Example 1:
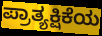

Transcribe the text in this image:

ಪ್ರಾತ್ಯಕ್ಷಿಕೆಯ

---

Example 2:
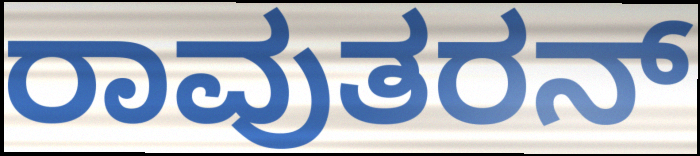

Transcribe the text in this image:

ರಾವುತರನ್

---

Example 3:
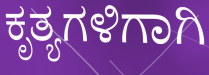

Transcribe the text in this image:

ಕೃತ್ಯಗಳಿಗಾಗಿ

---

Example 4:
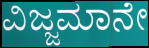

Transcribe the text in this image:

ವಿಜ್ಜಮಾನೇ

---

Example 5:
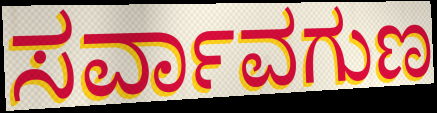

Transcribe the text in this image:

ಸರ್ವಾವಗುಣ